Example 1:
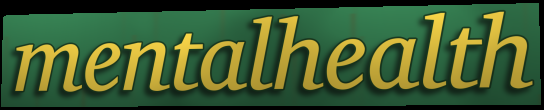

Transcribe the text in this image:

mentalhealth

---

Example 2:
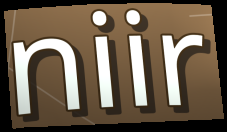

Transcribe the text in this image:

niir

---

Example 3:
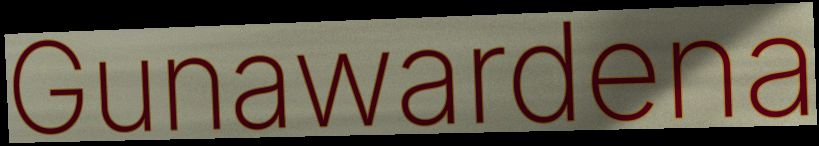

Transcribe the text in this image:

Gunawardena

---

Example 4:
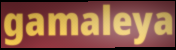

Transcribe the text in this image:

gamaleya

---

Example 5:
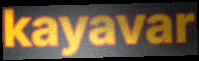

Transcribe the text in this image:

kayavar